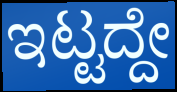
ಇಟ್ಟದ್ದೇ